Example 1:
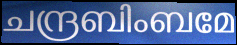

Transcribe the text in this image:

ചന്ദ്രബിംബമേ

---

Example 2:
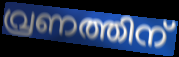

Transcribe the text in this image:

വ്രണത്തിന്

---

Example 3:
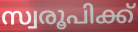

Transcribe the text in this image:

സ്വരൂപിക്ക്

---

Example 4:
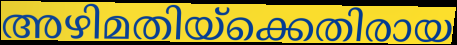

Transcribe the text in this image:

അഴിമതിയ്ക്കെതിരായ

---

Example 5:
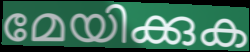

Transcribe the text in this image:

മേയിക്കുക